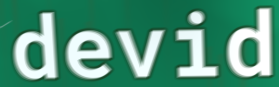
devid